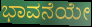
ಭಾವನೆಯೇ